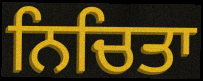
ਨਿਚਿਤਾ